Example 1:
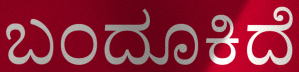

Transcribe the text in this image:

ಬಂದೂಕಿದೆ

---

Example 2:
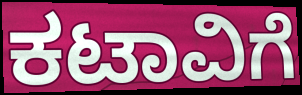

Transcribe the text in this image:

ಕಟಾವಿಗೆ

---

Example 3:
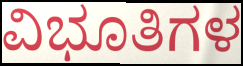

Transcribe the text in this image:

ವಿಭೂತಿಗಳ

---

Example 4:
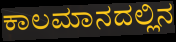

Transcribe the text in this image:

ಕಾಲಮಾನದಲ್ಲಿನ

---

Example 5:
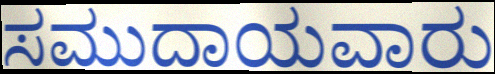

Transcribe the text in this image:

ಸಮುದಾಯವಾರು